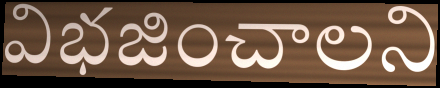
విభజించాలని